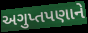
અગુપ્તપણાને